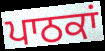
ਪਾਠਕਾਂ